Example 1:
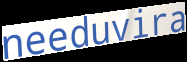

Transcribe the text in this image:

needuvira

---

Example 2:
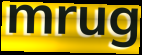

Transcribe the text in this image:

mrug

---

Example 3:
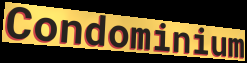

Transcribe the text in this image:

Condominium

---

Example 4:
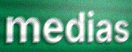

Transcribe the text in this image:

medias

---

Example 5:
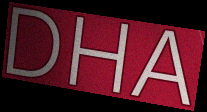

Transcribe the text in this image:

DHA